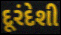
દૂરંદેશી